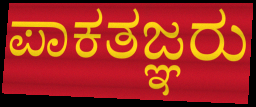
ಪಾಕತಜ್ಞರು